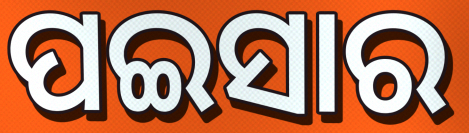
ପଇସାର